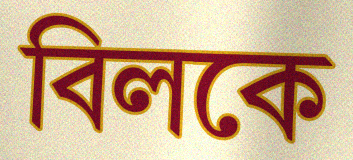
বিলকে